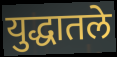
युद्धातले